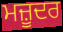
ਮਜ਼ੂਦਰ